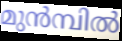
മുൻമ്പിൽ